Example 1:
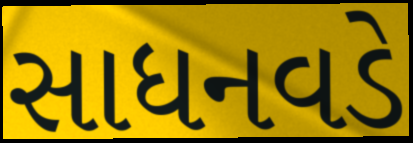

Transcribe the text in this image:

સાધનવડે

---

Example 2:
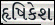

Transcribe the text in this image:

હૃષિકેશ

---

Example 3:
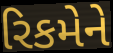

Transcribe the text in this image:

રિકમેને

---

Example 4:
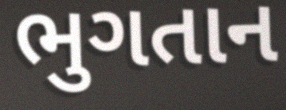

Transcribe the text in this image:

ભુગતાન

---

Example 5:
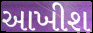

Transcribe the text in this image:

આખીશ